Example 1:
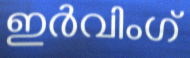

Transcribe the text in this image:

ഇർവിംഗ്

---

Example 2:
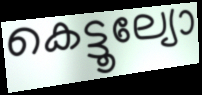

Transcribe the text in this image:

കെട്ടൂല്യോ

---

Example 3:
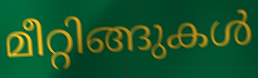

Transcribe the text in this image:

മീറ്റിങ്ങുകൾ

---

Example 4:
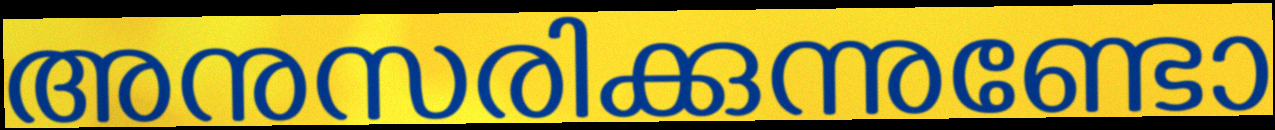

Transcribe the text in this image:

അനുസരിക്കുന്നുണ്ടോ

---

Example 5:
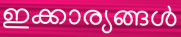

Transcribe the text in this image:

ഇക്കാര്യങ്ങൾ